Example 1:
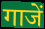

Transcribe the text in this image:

गाजें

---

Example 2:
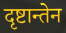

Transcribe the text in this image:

दृष्टान्तेन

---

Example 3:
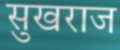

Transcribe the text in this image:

सुखराज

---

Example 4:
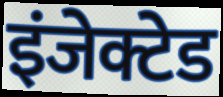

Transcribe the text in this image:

इंजेक्टेड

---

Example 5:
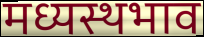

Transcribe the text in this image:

मध्यस्थभाव